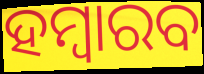
ହମ୍ବାରବ